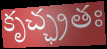
కృచ్ఛ్రతః